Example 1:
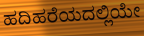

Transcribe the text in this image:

ಹದಿಹರೆಯದಲ್ಲಿಯೇ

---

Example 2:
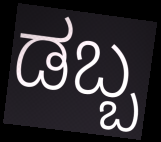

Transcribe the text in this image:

ಡಬ್ಬ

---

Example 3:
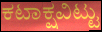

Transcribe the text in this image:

ಕಟಾಕ್ಷವಿಟ್ಟು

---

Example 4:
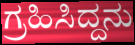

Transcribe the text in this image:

ಗ್ರಹಿಸಿದ್ದನು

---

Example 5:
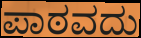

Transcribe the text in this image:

ಪಾಠವದು